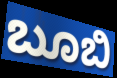
ಬೂಬಿ